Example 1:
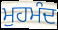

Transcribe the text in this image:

ਮੁਹਮੰਦ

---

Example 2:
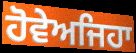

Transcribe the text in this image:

ਹੋਵੇਅਜਿਹਾ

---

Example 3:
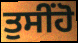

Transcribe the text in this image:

ਤੁਸੀਂਹੋ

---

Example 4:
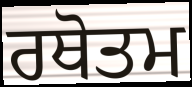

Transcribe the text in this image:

ਰਥੋਤਮ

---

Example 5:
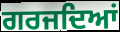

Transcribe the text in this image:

ਗਰਜਦਿਆਂ